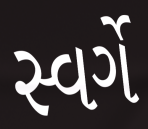
સ્વર્ગે